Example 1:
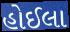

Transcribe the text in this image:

હોઈલા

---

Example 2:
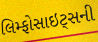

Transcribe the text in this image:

લિમ્ફોસાઇટ્સની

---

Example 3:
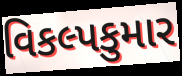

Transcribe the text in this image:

વિકલ્પકુમાર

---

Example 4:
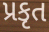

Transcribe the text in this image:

પ્રકૃત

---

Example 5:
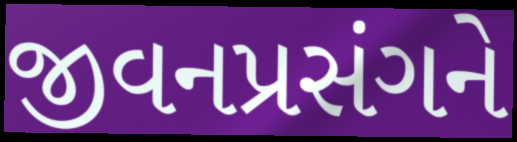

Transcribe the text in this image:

જીવનપ્રસંગને